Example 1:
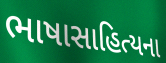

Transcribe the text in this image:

ભાષાસાહિત્યના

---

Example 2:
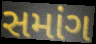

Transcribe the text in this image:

સમાંગ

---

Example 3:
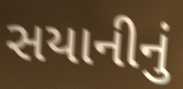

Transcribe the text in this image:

સયાનીનું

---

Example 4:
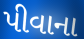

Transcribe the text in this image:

પીવાના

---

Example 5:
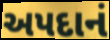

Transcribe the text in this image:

અપદાનં